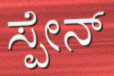
ಸ್ಪೇನ್